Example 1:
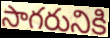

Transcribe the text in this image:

సాగరునికి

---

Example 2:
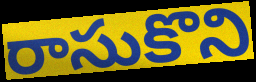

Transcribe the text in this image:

రాసుకొని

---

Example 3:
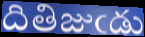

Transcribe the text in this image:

దితిజుఁడు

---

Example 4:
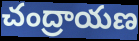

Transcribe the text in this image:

చంద్రాయణ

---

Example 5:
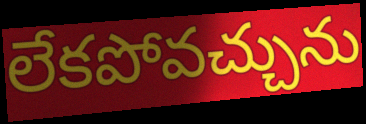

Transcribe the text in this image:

లేకపోవచ్చును